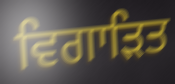
ਵਿਗਾੜਿਤ